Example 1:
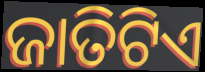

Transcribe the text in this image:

ଜାତିଟିଏ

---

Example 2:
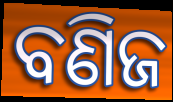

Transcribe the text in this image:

ବଣିଜ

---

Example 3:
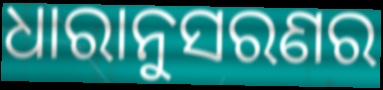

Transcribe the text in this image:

ଧାରାନୁସରଣର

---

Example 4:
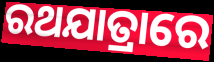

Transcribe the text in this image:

ରଥଯାତ୍ରାରେ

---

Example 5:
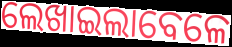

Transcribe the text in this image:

ଲେଖାଇଲାବେଳେ